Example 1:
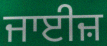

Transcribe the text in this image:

ਜਾਈਜ਼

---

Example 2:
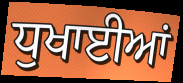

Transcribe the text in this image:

ਧੁਖਾਈਆਂ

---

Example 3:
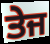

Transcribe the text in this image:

ਤੇਜ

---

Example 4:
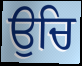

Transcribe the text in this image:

ਉਚਿ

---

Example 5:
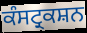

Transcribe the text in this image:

ਕੰਸਟ੍ਰਕਸ਼ਨ